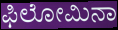
ಫಿಲೋಮಿನಾ